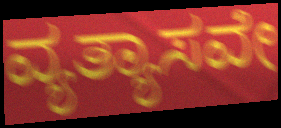
ವ್ಯತ್ಯಾಸವೇ